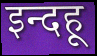
इन्दहू